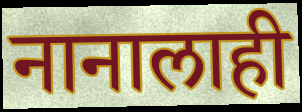
नानालाही